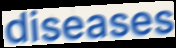
diseases